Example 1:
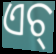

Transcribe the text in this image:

ଏଚ୍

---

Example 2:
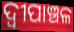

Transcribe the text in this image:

ଦ୍ୱୀପାଞ୍ଚଳ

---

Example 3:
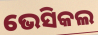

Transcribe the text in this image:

ଭେସିକଲ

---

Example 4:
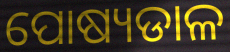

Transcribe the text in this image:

ପୋଷ୍ୟଡାଳ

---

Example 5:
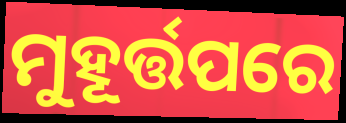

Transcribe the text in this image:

ମୁହୂର୍ତ୍ତପରେ